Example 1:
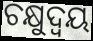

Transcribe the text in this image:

ଚକ୍ଷୁଦ୍ଵୟ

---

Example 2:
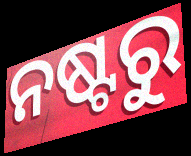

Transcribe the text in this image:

ନଷ୍ଟରୁ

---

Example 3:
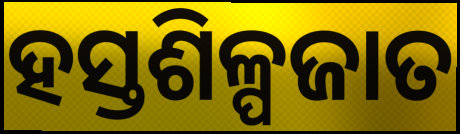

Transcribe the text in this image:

ହସ୍ତଶିଳ୍ପଜାତ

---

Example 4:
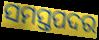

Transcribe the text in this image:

ସମସ୍ତପଦର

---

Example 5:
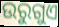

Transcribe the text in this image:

ଉରୁଗୁଏ